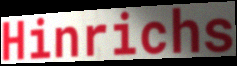
Hinrichs